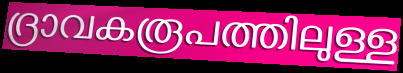
ദ്രാവകരൂപത്തിലുള്ള